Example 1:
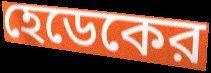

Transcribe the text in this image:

হেডেকের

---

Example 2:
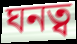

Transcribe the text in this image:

ঘনত্ব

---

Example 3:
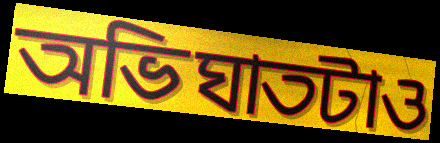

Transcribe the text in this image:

অভিঘাতটাও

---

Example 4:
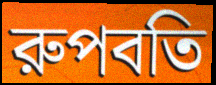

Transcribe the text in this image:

রুপবতি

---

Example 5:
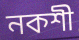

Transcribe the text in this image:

নকশী